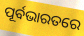
ପୂର୍ବଭାରତରେ